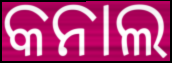
କନାଲ